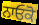
ਨਾਓਕੋ